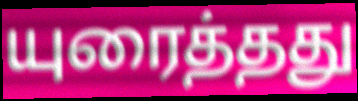
யுரைத்தது